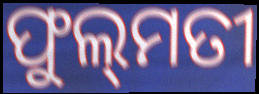
ଫୁଲ୍‍ମତୀ